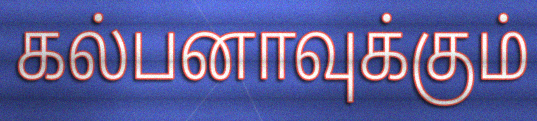
கல்பனாவுக்கும்